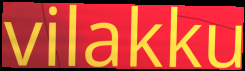
vilakku